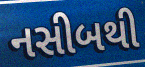
નસીબથી